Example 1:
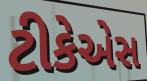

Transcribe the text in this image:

ટીકેએસ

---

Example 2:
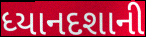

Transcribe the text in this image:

ધ્યાનદશાની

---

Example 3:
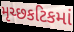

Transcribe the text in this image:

મૃચ્છકટિકમાં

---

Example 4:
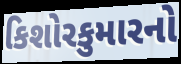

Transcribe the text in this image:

કિશોરકુમારનો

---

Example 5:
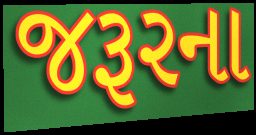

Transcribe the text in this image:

જરૂરના